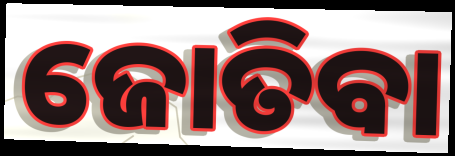
ଜୋତିବା